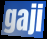
gaji